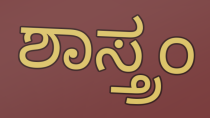
ಶಾಸ್ತ್ರಂ